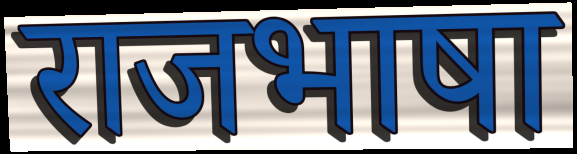
राजभाषा